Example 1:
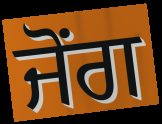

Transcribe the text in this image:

ਜੋਂਗ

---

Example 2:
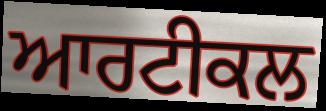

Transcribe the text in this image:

ਆਰਟੀਕਲ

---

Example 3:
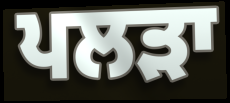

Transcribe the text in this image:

ਪਲੜਾ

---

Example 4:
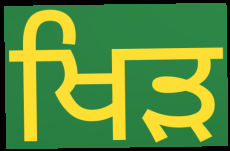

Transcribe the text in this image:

ਖਿੜ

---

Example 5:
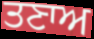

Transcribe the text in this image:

ਤਣਾਅ